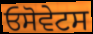
ਓਸੋਵੇਟਸ